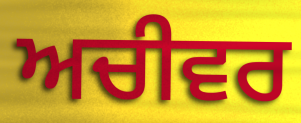
ਅਚੀਵਰ